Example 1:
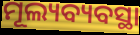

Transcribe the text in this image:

ମୂଲ୍ୟବ୍ୟବସ୍ଥା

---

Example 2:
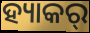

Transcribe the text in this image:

ହ୍ୟାକର୍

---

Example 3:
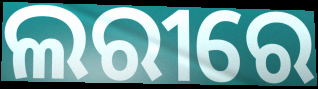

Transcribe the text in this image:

ଲରୀରେ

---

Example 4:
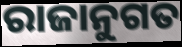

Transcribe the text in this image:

ରାଜାନୁଗତ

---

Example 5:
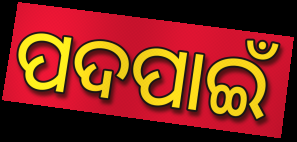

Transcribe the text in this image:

ପଦପାଇଁ